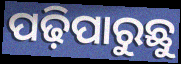
ପଢ଼ିପାରୁଛୁ